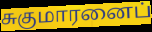
சுகுமாரனைப்